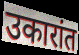
उकारांत